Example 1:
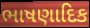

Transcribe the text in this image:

ભાષણાદિક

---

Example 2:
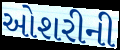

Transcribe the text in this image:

ઓશરીની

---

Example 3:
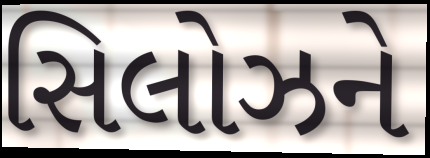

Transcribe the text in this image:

સિલોઝને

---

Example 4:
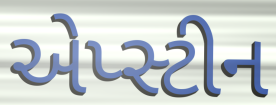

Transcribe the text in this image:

એપ્સ્ટીન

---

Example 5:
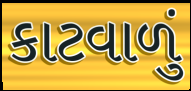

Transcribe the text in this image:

કાટવાળું